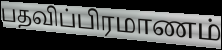
பதவிப்பிரமாணம்